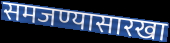
समजण्यासारखा